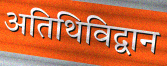
अतिथिविद्वान